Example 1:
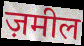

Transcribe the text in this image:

ज़मील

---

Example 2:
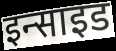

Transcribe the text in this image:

इन्साइड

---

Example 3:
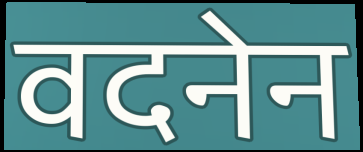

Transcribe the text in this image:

वदनेन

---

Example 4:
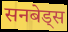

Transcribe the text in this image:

सनबेड्स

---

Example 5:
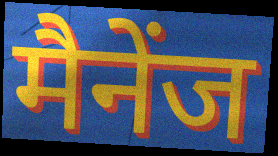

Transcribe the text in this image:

मैनेंज